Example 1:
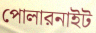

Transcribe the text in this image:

পোলারনাইট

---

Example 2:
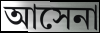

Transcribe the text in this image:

আসেনা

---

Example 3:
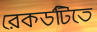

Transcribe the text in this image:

রেকর্ডটিতে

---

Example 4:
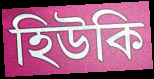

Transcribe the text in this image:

হিউকি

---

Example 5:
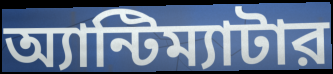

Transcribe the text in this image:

অ্যান্টিম্যাটার